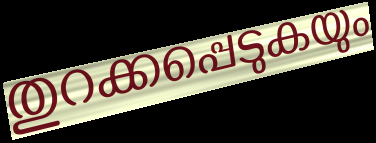
തുറക്കപ്പെടുകയും